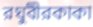
রঘুবীরকাকা